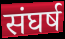
संघर्ष